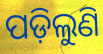
ପଡ଼ିଲୁଣି